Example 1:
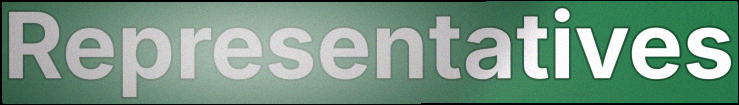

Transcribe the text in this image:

Representatives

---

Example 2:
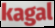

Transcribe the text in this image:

kagal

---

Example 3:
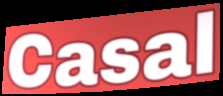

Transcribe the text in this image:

Casal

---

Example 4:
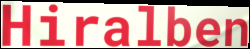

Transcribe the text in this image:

Hiralben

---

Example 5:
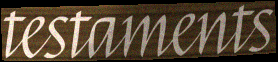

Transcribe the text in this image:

testaments